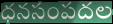
ధనసంపదల